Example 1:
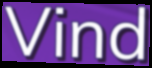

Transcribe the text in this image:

Vind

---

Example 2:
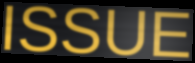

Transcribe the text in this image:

ISSUE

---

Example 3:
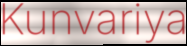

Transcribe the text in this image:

Kunvariya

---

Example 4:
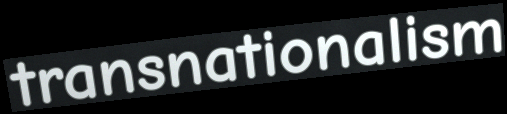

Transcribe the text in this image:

transnationalism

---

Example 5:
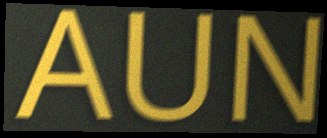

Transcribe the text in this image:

AUN